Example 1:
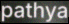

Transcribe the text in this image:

pathya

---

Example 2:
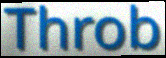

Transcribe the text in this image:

Throb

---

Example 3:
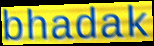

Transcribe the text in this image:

bhadak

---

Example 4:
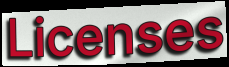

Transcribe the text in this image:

Licenses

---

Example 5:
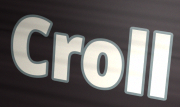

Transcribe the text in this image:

Croll